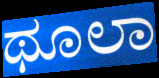
ಥೂಲಾ